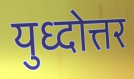
युध्दोत्तर